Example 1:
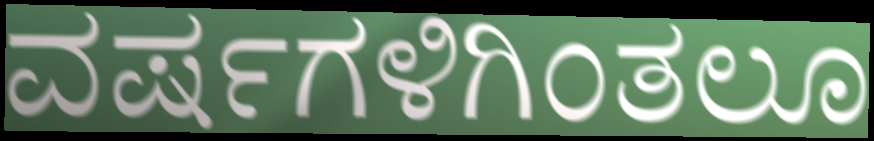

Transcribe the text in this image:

ವರ್ಷಗಳಿಗಿಂತಲೂ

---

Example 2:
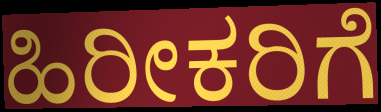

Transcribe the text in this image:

ಹಿರೀಕರಿಗೆ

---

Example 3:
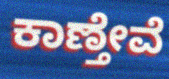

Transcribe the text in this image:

ಕಾಣ್ತೇವೆ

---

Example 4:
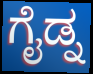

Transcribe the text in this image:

ಗೈಡ್ನ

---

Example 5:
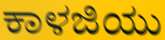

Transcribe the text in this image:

ಕಾಳಜಿಯು